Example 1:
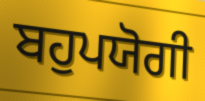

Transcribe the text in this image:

ਬਹੁਪਯੋਗੀ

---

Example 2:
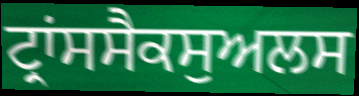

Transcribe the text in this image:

ਟ੍ਰਾਂਸਸੈਕਸੁਅਲਸ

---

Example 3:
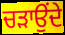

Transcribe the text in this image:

ਚੜਾਉਂਦੇ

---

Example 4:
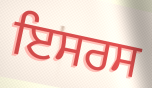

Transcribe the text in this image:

ਇਸਰਸ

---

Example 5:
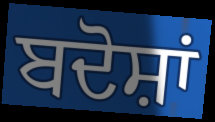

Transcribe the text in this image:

ਬਦੋਸ਼ਾਂ